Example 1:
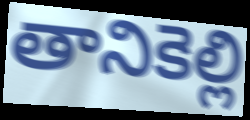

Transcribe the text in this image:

తానికెల్లి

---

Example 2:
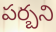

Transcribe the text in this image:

పర్బని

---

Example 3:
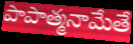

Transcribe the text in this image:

పాపాత్మనామేతే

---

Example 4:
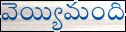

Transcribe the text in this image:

వెయ్యిమంది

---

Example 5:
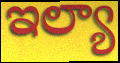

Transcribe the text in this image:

ఇల్యా